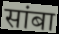
सांबा